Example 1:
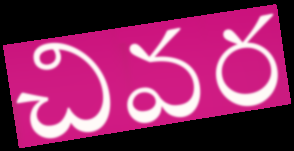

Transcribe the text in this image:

చివర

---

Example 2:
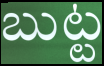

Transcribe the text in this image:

బుట్ట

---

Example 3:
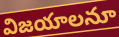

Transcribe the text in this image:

విజయాలనూ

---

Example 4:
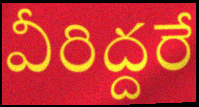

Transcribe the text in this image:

వీరిద్దరే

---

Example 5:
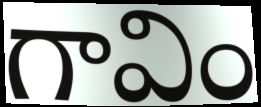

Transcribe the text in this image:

గావిం